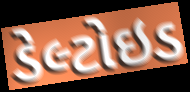
ડેલ્ટોઇડ